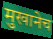
मुखानेच